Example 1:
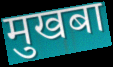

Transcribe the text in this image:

मुखबा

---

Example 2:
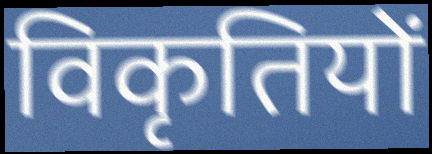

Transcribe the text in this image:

विकृतियों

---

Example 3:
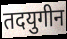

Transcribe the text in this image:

तदयुगीन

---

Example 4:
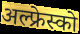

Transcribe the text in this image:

अल्फ्रेस्को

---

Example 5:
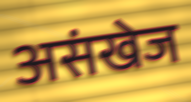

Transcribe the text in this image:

असंखेज